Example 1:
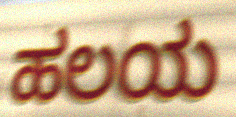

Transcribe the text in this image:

ಹಲಯ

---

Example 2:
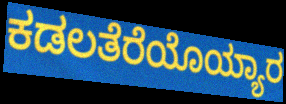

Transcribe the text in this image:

ಕಡಲತೆರೆಯೊಯ್ಯಾರ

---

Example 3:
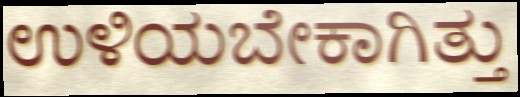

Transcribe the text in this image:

ಉಳಿಯಬೇಕಾಗಿತ್ತು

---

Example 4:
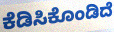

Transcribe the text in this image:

ಕೆಡಿಸಿಕೊಂಡಿದೆ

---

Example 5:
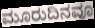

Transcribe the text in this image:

ಮೂರುದಿನವೂ